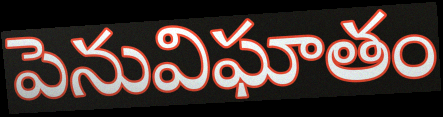
పెనువిఘాతం